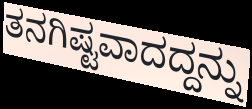
ತನಗಿಷ್ಟವಾದದ್ದನ್ನು